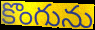
కొంగును